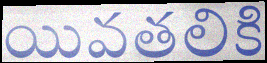
యివతలికి